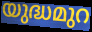
യുദ്ധമുറ